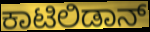
ಕಾಟಿಲಿಡಾನ್